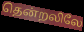
தென்றலிலே